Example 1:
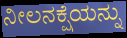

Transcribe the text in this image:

ನೀಲನಕ್ಷೆಯನ್ನು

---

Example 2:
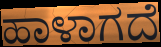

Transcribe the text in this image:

ಹಾಳಾಗದೆ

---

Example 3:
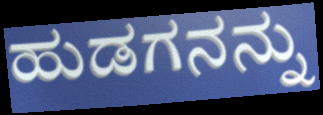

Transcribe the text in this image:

ಹುಡಗನನ್ನು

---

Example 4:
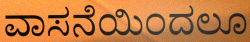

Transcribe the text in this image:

ವಾಸನೆಯಿಂದಲೂ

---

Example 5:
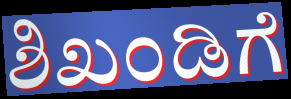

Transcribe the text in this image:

ಶಿಖಂಡಿಗೆ